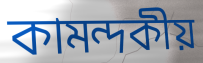
কামন্দকীয়